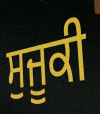
ਸੁਜੂਕੀ